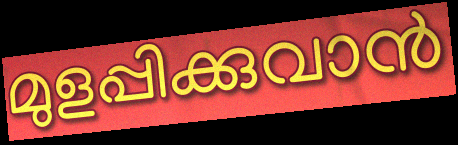
മുളപ്പിക്കുവാൻ